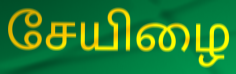
சேயிழை